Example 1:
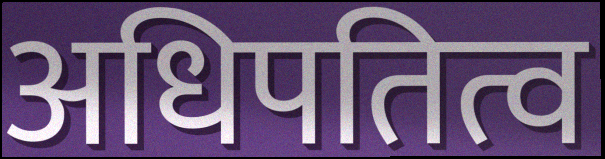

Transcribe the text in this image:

अधिपतित्व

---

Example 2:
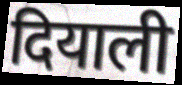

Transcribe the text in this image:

दियाली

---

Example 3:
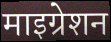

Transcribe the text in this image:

माइग्रेशन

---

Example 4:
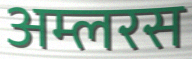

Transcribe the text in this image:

अम्लरस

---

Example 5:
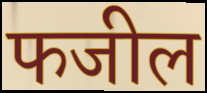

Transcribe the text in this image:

फजील